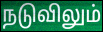
நடுவிலும்